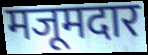
मजूमदार